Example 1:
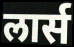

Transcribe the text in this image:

लार्स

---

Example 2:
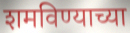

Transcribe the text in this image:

शमविण्याच्या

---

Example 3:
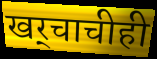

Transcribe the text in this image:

खर्चाचीही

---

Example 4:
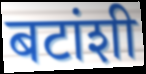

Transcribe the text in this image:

बटांशी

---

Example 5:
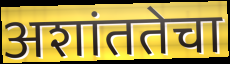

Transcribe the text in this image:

अशांततेचा